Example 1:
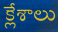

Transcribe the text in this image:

క్లేశాలు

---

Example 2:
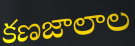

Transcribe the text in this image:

కణజాలాల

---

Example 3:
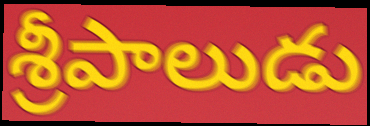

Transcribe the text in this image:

శ్రీపాలుడు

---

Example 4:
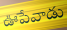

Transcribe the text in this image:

ఊపేవాడు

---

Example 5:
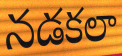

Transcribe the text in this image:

నడకలా